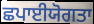
ਛਪਾਈਯੋਗਤਾ